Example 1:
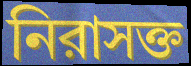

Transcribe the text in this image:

নিরাসক্ত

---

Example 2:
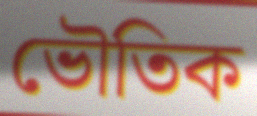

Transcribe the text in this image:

ভৌতিক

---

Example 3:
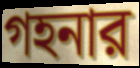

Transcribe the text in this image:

গহনার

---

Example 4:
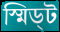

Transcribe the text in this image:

স্মিড্ট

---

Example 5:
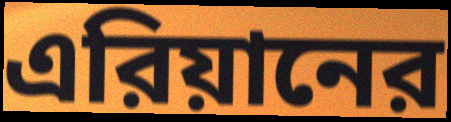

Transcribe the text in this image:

এরিয়ানের